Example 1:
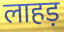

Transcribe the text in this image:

लाहड़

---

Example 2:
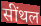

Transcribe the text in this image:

सींथल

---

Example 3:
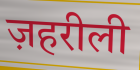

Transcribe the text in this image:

ज़हरीली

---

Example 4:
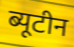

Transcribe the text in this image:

ब्यूटीन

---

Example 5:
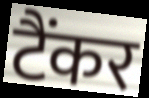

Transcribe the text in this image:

टैंकर